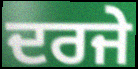
ਦਰਜੇ